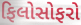
ફિલોસોફરો